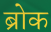
ब्रोक